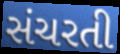
સંચરતી